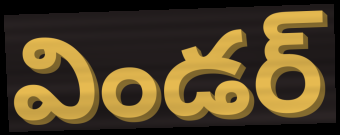
విండర్